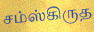
சம்ஸ்கிருத